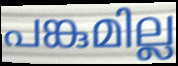
പങ്കുമില്ല